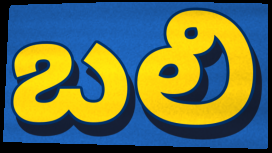
బలి